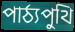
পাঠ্যপুথি